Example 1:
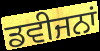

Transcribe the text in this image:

ਡਵੀਜਨਾਂ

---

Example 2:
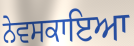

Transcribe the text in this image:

ਨੇਵਸਕਾਇਆ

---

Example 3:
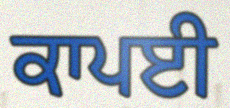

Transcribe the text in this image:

ਕਾਪਈ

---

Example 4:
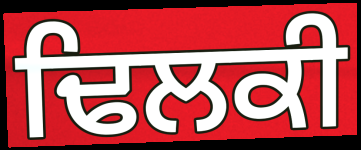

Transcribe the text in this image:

ਢਿਲਕੀ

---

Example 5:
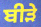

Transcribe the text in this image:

ਬੀੜੇ